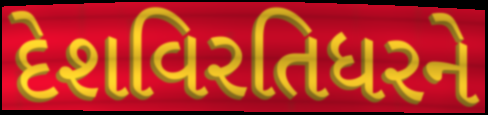
દેશવિરતિધરને